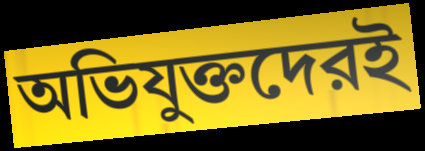
অভিযুক্তদেরই